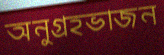
অনুগ্রহভাজন